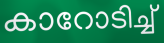
കാറോടിച്ച്